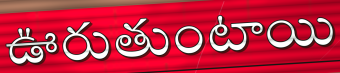
ఊరుతుంటాయి